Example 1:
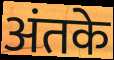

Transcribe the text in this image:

अंतके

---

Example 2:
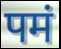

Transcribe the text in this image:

पमं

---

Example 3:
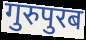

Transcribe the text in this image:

गुरुपुरब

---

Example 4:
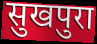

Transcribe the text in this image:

सुखपुरा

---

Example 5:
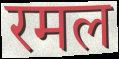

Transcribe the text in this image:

रमल